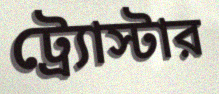
ট্র্যোস্টার